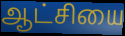
ஆட்சியை